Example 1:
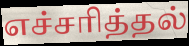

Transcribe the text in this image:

எச்சரித்தல்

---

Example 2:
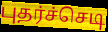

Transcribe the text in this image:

புதர்ச்செடி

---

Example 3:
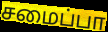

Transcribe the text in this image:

சமைப்பா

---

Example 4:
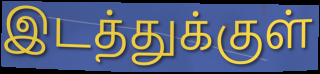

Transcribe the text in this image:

இடத்துக்குள்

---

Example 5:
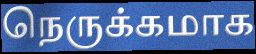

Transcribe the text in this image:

நெருக்கமாக